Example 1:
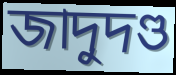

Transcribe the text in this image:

জাদুদণ্ড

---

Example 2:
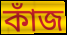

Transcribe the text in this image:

কাঁজ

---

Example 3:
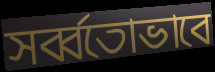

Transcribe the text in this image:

সর্ব্বতোভাবে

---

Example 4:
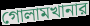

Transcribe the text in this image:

গোলামখানার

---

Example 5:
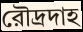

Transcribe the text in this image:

রৌদ্রদাহ